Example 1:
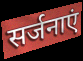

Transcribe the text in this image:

सर्जनाएं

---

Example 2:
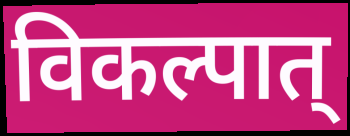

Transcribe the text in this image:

विकल्पात्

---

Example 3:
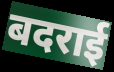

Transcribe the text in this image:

बदराई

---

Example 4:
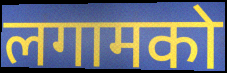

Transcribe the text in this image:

लगामको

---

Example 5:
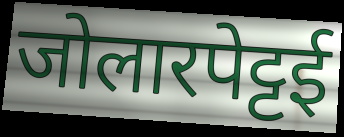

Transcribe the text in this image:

जोलारपेट्टई